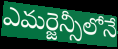
ఎమర్జెన్సీలోనే